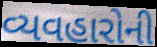
વ્યવહારોની